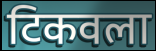
टिकवला